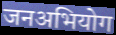
जनअभियोग